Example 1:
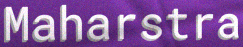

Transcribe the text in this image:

Maharstra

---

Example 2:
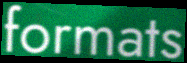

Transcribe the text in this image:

formats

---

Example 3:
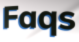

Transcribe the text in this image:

Faqs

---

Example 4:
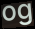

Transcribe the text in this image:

og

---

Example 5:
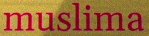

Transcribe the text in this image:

muslima